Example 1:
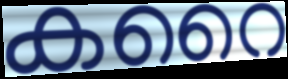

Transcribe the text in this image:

കറൈ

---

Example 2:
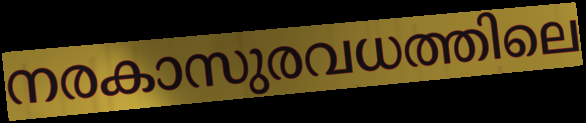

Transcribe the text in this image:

നരകാസുരവധത്തിലെ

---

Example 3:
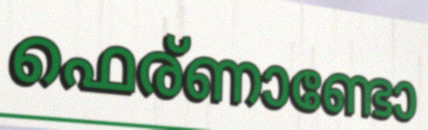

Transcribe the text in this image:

ഫെര്ണാണ്ടോ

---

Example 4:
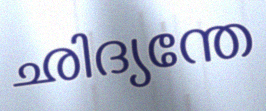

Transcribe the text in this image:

ഛിദ്യന്തേ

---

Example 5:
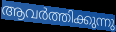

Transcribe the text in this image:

ആവർത്തിക്കുന്നു